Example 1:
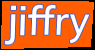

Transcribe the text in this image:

jiffry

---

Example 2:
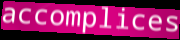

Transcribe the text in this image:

accomplices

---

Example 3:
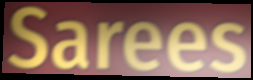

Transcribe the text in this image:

Sarees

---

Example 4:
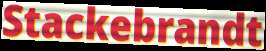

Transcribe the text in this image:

Stackebrandt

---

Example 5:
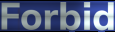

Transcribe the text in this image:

Forbid